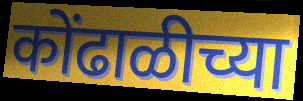
कोंढाळीच्या